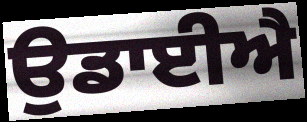
ਉਡਾਈਐ